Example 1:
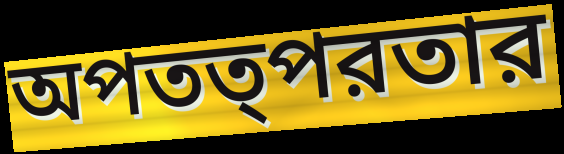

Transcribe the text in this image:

অপতত্পরতার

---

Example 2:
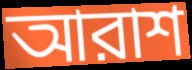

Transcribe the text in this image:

আরাশ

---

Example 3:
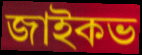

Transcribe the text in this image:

জাইকভ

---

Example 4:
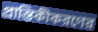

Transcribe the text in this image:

প্রান্তিকীকরণের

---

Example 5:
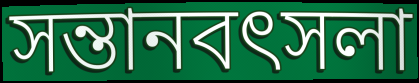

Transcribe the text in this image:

সন্তানবৎসলা